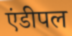
एंडीपल